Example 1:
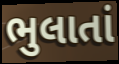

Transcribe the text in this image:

ભુલાતાં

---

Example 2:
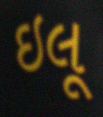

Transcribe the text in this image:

ઇલૂ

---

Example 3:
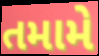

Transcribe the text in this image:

તમામે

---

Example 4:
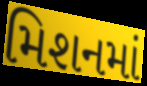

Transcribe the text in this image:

મિશનમાં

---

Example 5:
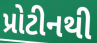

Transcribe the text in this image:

પ્રોટીનથી